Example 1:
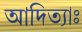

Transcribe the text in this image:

আদিত্যাঃ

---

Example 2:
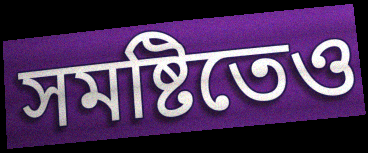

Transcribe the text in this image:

সমষ্টিতেও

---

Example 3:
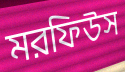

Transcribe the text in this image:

মরফিউস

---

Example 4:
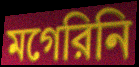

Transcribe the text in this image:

মগেরিনি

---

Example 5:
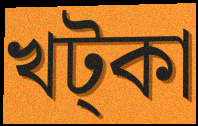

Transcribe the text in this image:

খট্কা